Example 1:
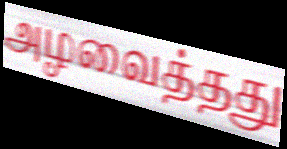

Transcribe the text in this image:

அழவைத்தது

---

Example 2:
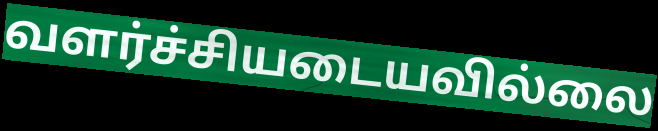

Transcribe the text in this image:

வளர்ச்சியடையவில்லை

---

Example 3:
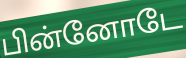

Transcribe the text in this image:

பின்னோடே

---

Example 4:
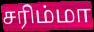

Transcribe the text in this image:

சரிம்மா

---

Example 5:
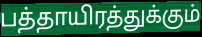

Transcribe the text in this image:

பத்தாயிரத்துக்கும்